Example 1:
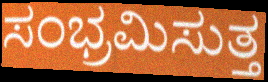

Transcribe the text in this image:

ಸಂಭ್ರಮಿಸುತ್ತ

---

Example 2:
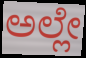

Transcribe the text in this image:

ಅಲ್ಲೇ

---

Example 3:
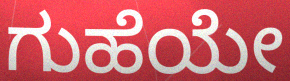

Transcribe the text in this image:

ಗುಹೆಯೇ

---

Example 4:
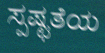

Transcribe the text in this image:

ಸ್ಪಷ್ಟತೆಯ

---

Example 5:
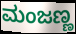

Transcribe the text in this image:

ಮಂಜಣ್ಣ